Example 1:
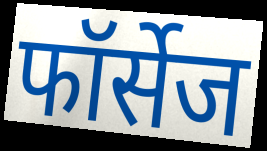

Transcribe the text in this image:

फॉर्सेज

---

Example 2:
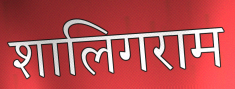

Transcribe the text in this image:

शालिगराम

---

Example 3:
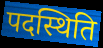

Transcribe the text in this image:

पदस्थिति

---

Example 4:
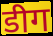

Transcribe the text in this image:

डीग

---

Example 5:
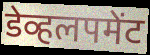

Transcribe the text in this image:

डेव्हलपमेंट